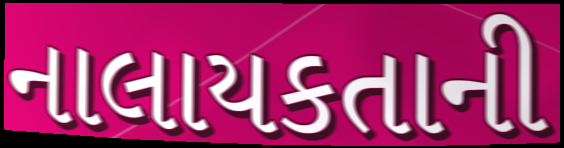
નાલાયકતાની